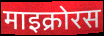
माइक्रोरस